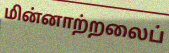
மின்னாற்றலைப்